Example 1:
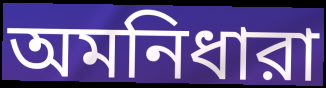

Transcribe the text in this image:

অমনিধারা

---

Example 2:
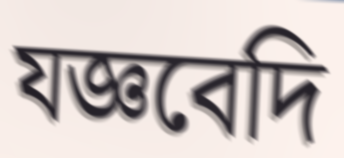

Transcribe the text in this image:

যজ্ঞবেদি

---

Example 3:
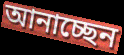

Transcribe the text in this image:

আনাচ্ছেন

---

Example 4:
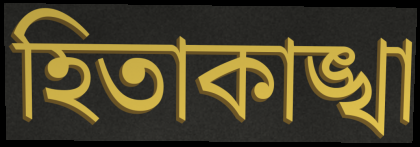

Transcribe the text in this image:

হিতাকাঙ্খা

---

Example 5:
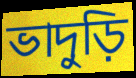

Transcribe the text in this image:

ভাদুড়ি